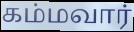
கம்மவார்